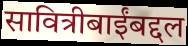
सावित्रीबाईंबद्दल